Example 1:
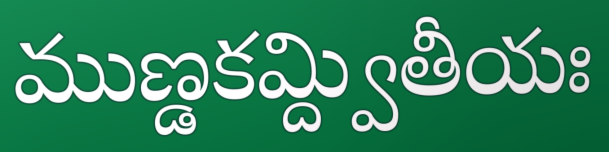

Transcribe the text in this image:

ముణ్డకమ్ద్వితీయః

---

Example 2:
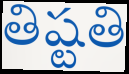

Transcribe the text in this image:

తిష్టతి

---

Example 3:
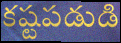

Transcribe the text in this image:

కష్టపడుడి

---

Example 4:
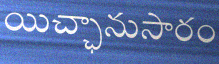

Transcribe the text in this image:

యిచ్ఛానుసారం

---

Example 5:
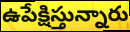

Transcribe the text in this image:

ఉపేక్షిస్తున్నారు